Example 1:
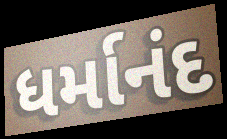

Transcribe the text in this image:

ધર્માનંદ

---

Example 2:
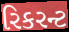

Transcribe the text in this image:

રિકરન્ટ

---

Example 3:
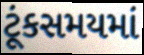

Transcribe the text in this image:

ટૂંકસમયમાં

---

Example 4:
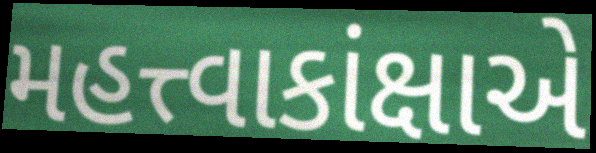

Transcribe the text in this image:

મહત્ત્વાકાંક્ષાએ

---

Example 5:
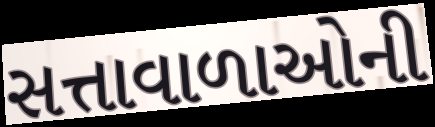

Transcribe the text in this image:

સત્તાવાળાઓની